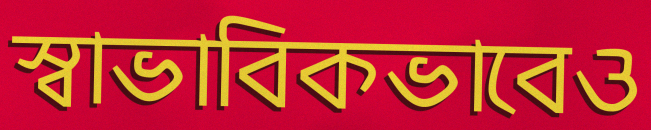
স্বাভাবিকভাবেও